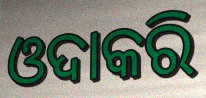
ଓଦାକରି